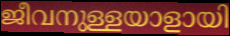
ജീവനുള്ളയാളായി